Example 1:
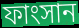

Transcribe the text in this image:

ফাংসান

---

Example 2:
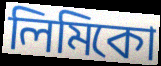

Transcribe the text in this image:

লিমিকো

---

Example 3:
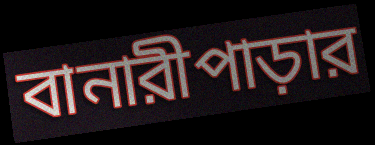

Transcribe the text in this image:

বানারীপাড়ার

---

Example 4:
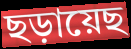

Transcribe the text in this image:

ছড়ায়েছ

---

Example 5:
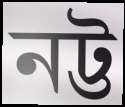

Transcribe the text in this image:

নট্ট